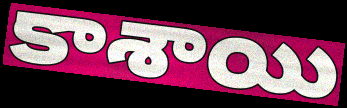
కాశాయి